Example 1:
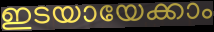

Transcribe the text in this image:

ഇടയായേക്കാം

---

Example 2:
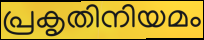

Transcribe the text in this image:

പ്രകൃതിനിയമം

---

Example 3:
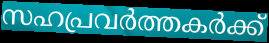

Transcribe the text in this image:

സഹപ്രവർത്തകർക്ക്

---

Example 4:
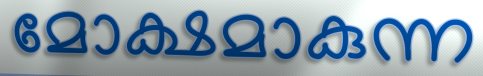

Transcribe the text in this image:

മോക്ഷമാകുന്ന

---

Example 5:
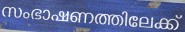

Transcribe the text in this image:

സംഭാഷണത്തിലേക്ക്